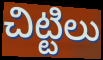
చిట్టిలు